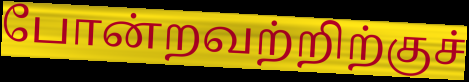
போன்றவற்றிற்குச்